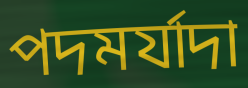
পদমর্যাদা